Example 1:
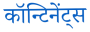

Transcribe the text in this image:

कॉन्टिनेंट्स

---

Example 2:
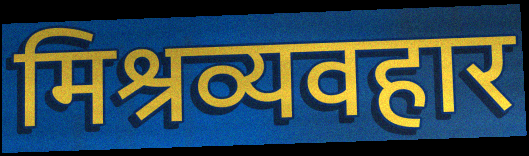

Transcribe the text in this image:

मिश्रव्यवहार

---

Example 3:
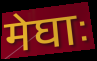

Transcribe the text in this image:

मेघाः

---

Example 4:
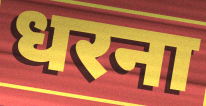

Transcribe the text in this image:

धरना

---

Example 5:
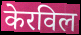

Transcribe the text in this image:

केरविल